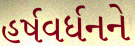
હર્ષવર્ધનને